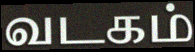
வடகம்